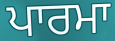
ਪਾਰਮਾ